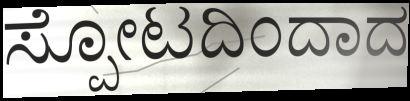
ಸ್ಪೋಟದಿಂದಾದ